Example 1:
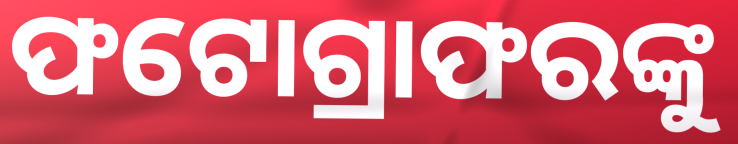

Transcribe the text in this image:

ଫଟୋଗ୍ରାଫରଙ୍କୁ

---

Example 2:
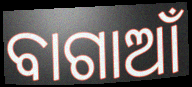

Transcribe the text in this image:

ବାଗାଆଁ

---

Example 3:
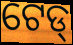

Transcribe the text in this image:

ଟେଡ୍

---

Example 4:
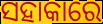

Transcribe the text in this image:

ସହାକାରେ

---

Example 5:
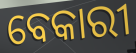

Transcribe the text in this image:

ବେକାରୀ